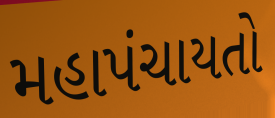
મહાપંચાયતો